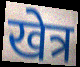
खेत्र